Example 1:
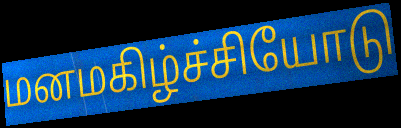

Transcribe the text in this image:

மனமகிழ்ச்சியோடு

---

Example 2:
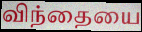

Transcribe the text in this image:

விந்தையை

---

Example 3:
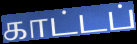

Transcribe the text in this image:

காட்டப்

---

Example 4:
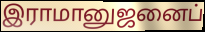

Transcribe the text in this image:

இராமானுஜனைப்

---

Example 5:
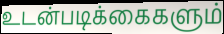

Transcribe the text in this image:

உடன்படிக்கைகளும்